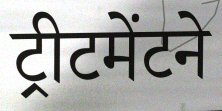
ट्रीटमेंटने